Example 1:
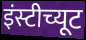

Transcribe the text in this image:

इंस्‍टीच्‍यूट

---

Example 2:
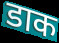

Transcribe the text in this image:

डाक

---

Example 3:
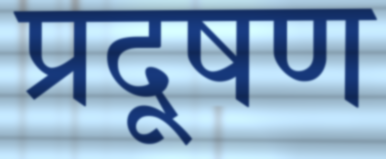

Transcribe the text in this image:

प्रदूषण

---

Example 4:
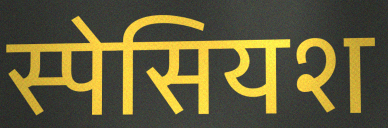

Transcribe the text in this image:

स्पेसियश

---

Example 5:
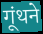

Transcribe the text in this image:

गूंथने